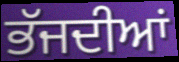
ਭੱਜਦੀਆਂ